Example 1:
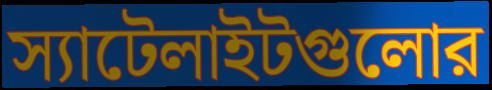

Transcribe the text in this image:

স্যাটেলাইটগুলোর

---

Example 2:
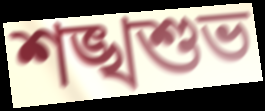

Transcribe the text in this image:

শঙ্খশুভ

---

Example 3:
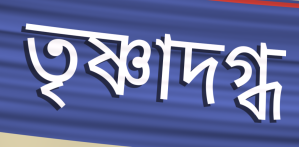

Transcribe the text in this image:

তৃষ্ণাদগ্ধ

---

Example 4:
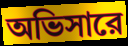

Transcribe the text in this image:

অভিসারে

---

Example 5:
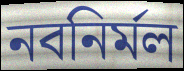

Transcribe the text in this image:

নবনির্মল